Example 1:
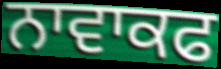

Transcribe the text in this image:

ਨਾਵਾਕਫ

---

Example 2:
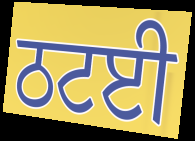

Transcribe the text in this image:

ਠਟਈ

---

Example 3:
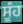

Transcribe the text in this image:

ਸੂੰਹ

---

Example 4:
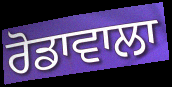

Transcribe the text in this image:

ਰੋਡਾਵਾਲਾ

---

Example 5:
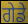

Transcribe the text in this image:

ਗੇਡੇ